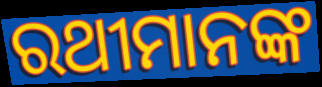
ରଥୀମାନଙ୍କ